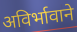
अविर्भावाने